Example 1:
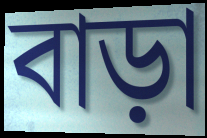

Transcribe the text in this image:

বাড়া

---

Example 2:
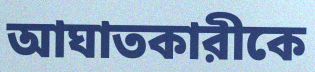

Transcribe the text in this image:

আঘাতকারীকে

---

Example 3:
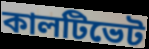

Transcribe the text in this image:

কালটিভেট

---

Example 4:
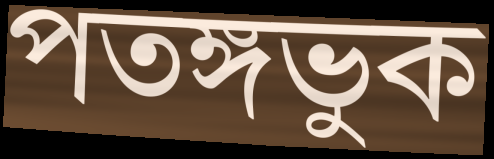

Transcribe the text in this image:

পতঙ্গভুক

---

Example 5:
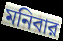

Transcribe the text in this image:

মনিবার